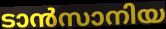
ടാൻസാനിയ